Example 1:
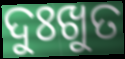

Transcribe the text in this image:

ଦୁଃଖୁତ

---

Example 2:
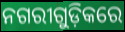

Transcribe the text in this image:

ନଗରୀଗୁଡ଼ିକରେ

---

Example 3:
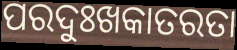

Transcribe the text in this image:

ପରଦୁଃଖକାତରତା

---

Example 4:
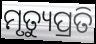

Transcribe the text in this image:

ମୃତ୍ୟୁପ୍ରତି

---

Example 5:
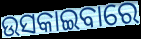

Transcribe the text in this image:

ଉସକାଇବାରେ